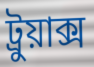
ট্রুয়াক্স